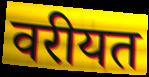
वरीयत